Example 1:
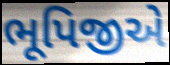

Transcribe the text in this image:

ભૂપિજીએ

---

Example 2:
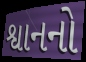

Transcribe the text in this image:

શ્વાનનો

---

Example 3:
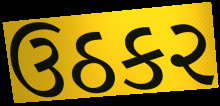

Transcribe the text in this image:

ઉઠકર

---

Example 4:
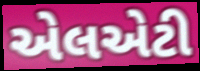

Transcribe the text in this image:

એલએટી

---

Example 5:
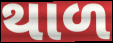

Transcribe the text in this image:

થાળ